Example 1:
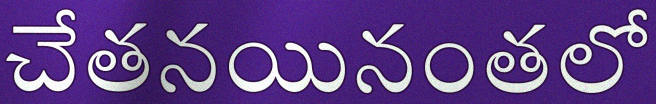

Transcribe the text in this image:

చేతనయినంతలో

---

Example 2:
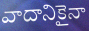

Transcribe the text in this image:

వాదానికైనా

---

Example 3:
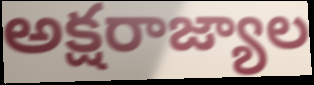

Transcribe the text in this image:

అక్షరాజ్యాల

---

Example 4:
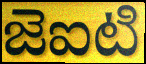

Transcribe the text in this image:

జెఐటి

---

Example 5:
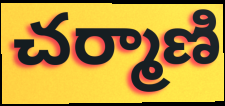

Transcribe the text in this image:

చర్మాణి